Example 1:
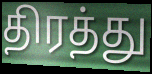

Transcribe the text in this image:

திரத்து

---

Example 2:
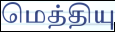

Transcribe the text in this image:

மெத்தியு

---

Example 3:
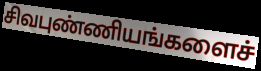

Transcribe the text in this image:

சிவபுண்ணியங்களைச்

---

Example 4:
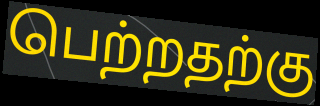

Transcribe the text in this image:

பெற்றதற்கு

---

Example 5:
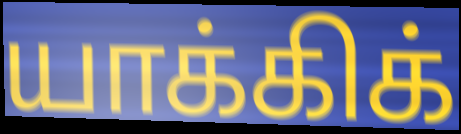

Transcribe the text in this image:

யாக்கிக்